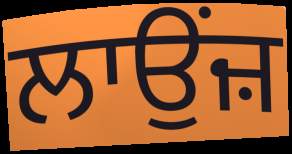
ਲਾਉਂਜ਼